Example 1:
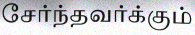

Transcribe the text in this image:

சேர்ந்தவர்க்கும்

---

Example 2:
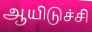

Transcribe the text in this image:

ஆயிடுச்சி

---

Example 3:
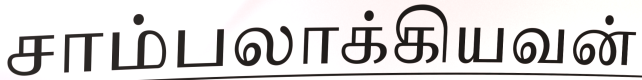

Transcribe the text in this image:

சாம்பலாக்கியவன்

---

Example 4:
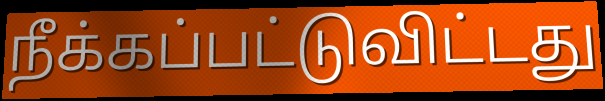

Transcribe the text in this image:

நீக்கப்பட்டுவிட்டது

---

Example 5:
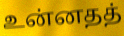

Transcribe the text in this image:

உன்னதத்